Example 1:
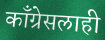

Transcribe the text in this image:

काँग्रेसलाही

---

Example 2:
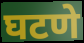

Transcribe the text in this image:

घटणे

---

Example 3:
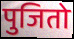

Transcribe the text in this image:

पुजितो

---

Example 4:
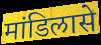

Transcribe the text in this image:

मांडिलासे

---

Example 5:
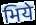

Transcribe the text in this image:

भिये